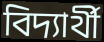
বিদ্যার্থী